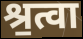
श्र॒त्वा